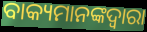
ବାକ୍ୟମାନଙ୍କଦ୍ୱାରା